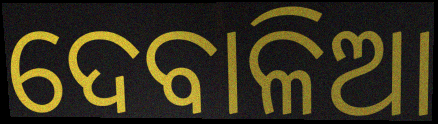
ଦେବାଳିଆ